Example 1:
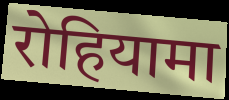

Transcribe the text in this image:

रोहियामा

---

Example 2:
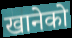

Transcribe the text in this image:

खानेको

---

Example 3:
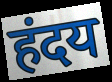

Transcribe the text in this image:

हंदय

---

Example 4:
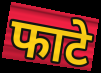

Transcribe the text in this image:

फाटे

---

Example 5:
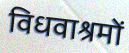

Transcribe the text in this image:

विधवाश्रमों